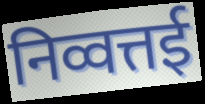
निव्वत्तई